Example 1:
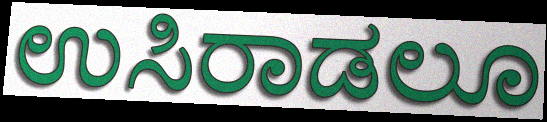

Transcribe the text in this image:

ಉಸಿರಾಡಲೂ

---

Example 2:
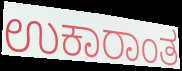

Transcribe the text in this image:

ಉಕಾರಾಂತ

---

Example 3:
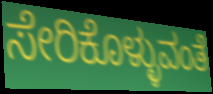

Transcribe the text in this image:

ಸೇರಿಕೊಳ್ಳುವಂತೆ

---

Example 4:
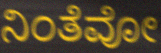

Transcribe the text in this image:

ನಿಂತೆವೋ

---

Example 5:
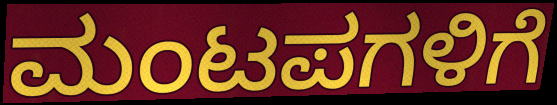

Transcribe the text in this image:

ಮಂಟಪಗಳಿಗೆ